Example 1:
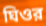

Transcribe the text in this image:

ঘিওর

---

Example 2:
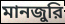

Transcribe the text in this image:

মানজুরি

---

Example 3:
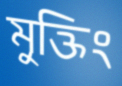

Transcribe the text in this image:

মুক্তিং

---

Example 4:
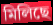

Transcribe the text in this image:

মিলিছে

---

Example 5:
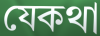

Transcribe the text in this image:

যেকথা